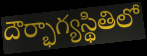
దౌర్భాగ్యస్థితిలో